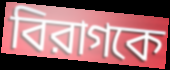
বিরাগকে